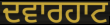
ਦਵਾਰਹਾਟ